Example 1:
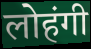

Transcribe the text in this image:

लोहंगी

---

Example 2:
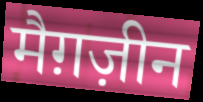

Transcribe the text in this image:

मैग़ज़ीन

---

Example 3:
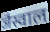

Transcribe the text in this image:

जैस्वाल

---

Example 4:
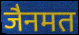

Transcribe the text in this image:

जैनमत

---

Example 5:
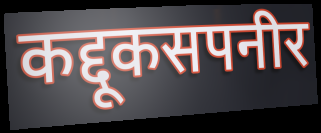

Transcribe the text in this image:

कद्दूकसपनीर